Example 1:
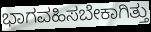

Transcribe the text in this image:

ಭಾಗವಹಿಸಬೇಕಾಗಿತ್ತು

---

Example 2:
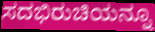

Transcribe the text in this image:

ಸದಭಿರುಚಿಯನ್ನೂ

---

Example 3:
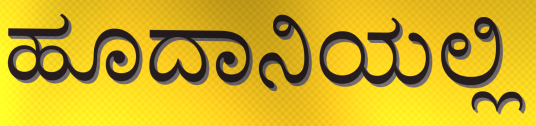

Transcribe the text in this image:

ಹೂದಾನಿಯಲ್ಲಿ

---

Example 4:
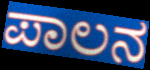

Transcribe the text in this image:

ಪಾಲನ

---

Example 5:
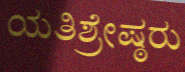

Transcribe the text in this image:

ಯತಿಶ್ರೇಷ್ಠರು